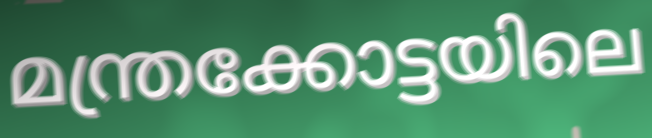
മന്ത്രക്കോട്ടയിലെ